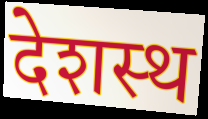
देशस्थ